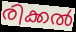
രിക്കൽ